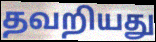
தவறியது